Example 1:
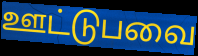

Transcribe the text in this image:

ஊட்டுபவை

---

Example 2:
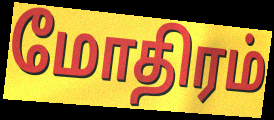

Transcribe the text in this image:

மோதிரம்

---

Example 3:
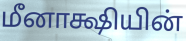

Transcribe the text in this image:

மீனாக்ஷியின்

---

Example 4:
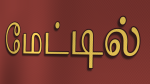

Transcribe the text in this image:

மேட்டில்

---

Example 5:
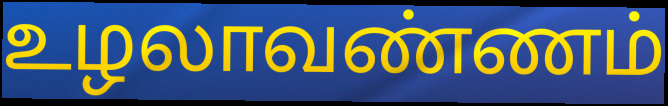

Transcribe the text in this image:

உழலாவண்ணம்